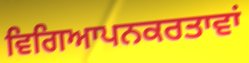
ਵਿਗਿਆਪਨਕਰਤਾਵਾਂ